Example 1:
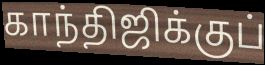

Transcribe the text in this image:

காந்திஜிக்குப்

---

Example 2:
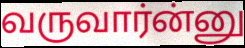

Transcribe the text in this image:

வருவார்ன்னு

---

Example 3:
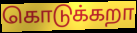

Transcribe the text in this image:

கொடுக்கறா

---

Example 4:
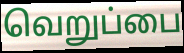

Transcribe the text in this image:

வெறுப்பை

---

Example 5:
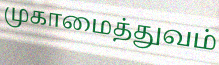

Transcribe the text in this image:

முகாமைத்துவம்